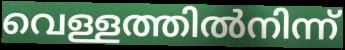
വെള്ളത്തിൽനിന്ന്